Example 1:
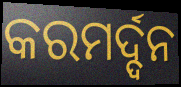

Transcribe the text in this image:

କରମର୍ଦ୍ଦନ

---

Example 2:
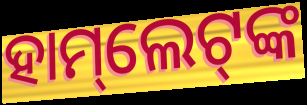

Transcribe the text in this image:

ହାମ୍‌ଲେଟ୍‌ଙ୍କ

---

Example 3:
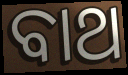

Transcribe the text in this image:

ବାଥ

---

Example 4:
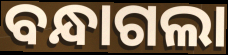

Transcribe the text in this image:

ବନ୍ଧାଗଲା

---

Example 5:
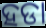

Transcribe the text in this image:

ହଡା